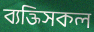
ব্যক্তিসকল